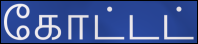
கோட்டட்